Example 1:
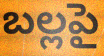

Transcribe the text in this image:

బల్లపై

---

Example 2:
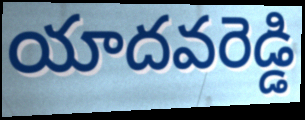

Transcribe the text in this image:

యాదవరెడ్డి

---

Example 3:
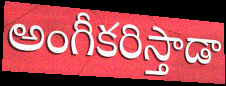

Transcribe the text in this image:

అంగీకరిస్తాడా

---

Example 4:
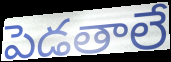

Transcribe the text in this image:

పెడతాలే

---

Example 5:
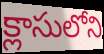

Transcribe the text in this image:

క్లాసులోని